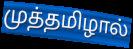
முத்தமிழால்